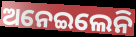
ଅନେଇଲେନି